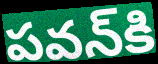
పవన్‌కి